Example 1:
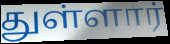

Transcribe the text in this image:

துள்ளார்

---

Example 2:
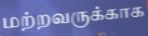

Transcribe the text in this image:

மற்றவருக்காக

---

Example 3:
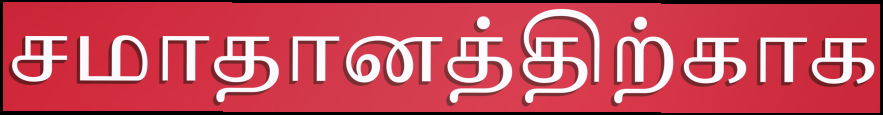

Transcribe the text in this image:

சமாதானத்திற்காக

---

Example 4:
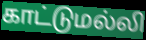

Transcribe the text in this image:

காட்டுமல்லி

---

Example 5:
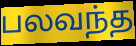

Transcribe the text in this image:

பலவந்த